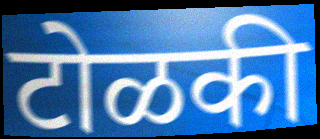
टोळकी